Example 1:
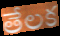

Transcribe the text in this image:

తేలక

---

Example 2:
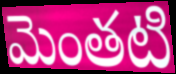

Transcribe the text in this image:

మెంతటి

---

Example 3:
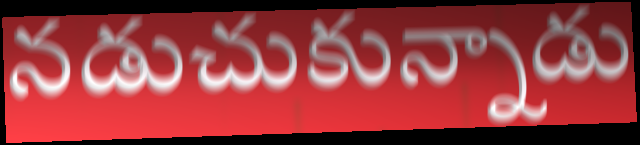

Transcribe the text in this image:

నడుచుకున్నాడు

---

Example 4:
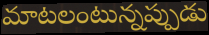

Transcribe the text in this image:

మాటలంటున్నప్పుడు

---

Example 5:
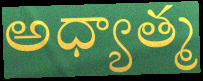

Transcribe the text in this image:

అధ్యాత్మ